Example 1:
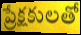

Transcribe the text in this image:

ప్రేక్షకులతో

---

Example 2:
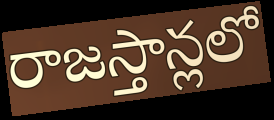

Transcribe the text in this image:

రాజస్తాన్లలో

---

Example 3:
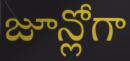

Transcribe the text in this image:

జూన్లోగా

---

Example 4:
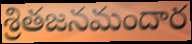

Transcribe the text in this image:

శ్రితజనమందార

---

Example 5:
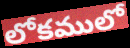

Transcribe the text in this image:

లోకములో